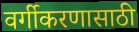
वर्गीकरणासाठी